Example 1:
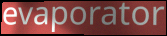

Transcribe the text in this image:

evaporator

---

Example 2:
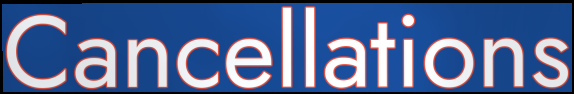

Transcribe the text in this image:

Cancellations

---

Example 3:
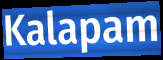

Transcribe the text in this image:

Kalapam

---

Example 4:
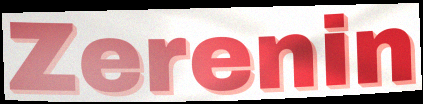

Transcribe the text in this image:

Zerenin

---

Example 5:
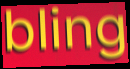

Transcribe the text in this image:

bling